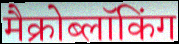
मैक्रोब्लॉकिंग